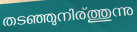
തടഞ്ഞുനിര്ത്തുന്നു